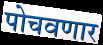
पोचवणार